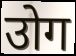
उोग